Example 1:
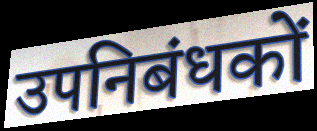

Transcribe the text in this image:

उपनिबंधकों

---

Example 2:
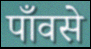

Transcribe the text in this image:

पाँवसे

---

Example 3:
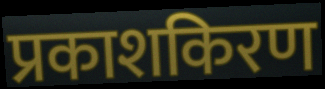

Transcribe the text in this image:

प्रकाशकिरण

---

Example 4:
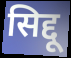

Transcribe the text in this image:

सिद्दू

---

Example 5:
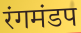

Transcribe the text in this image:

रंगमंडप